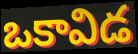
ఒకావిడ